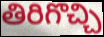
తిరిగొచ్చి